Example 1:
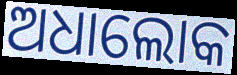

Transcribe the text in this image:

ଅଧାଲୋକ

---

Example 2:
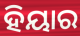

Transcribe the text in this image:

ହିୟାର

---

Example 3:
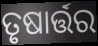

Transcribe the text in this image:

ତୃଷାର୍ତ୍ତର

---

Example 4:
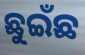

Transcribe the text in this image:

ଛୁଇଁଛ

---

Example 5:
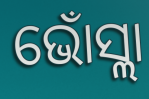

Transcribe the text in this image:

ଭୋଁସ୍ଲା